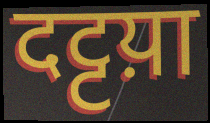
दट्टय़ा